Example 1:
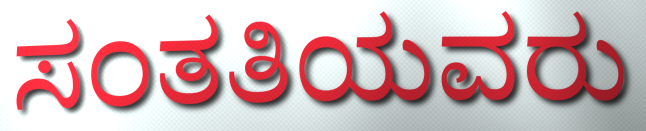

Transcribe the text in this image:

ಸಂತತಿಯವರು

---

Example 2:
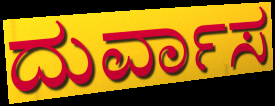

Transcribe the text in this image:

ದುರ್ವಾಸ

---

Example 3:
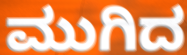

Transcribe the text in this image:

ಮುಗಿದ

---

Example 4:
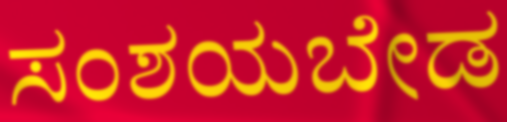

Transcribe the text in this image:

ಸಂಶಯಬೇಡ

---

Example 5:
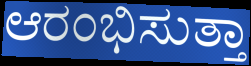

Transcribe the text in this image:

ಆರಂಭಿಸುತ್ತಾ